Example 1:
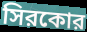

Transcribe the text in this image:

সিরকোর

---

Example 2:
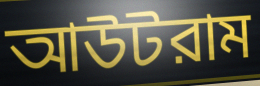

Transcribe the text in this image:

আউটরাম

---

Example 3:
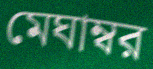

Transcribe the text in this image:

মেঘাম্বর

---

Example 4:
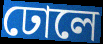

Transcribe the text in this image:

ঢোলে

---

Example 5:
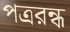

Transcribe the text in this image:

পত্ররন্ধ